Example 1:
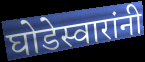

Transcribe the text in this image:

घोडेस्वारांनी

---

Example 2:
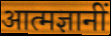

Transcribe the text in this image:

आत्मज्ञानीं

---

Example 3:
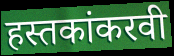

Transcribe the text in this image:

हस्तकांकरवी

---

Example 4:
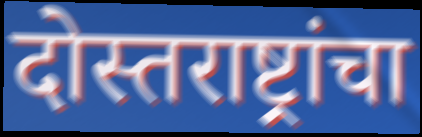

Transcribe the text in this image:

दोस्तराष्ट्रांचा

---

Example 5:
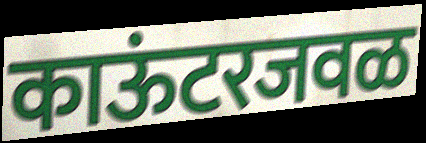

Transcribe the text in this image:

काऊंटरजवळ